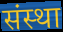
संस्था